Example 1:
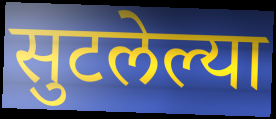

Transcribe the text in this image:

सुटलेल्या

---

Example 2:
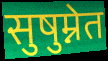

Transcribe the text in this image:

सुषुम्नेत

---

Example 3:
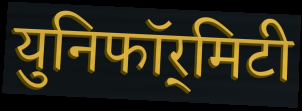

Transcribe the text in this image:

युनिफॉर्मिटी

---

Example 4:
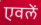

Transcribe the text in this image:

एवलें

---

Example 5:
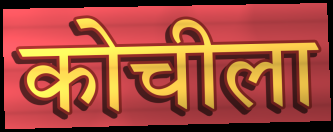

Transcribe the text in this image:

कोचीला